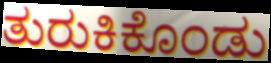
ತುರುಕಿಕೊಂಡು